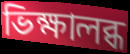
ভিক্ষালব্ধ